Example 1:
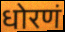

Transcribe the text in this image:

धोरणं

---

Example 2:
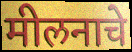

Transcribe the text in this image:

मीलनाचे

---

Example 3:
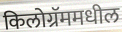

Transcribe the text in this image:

किलोग्रॅममधील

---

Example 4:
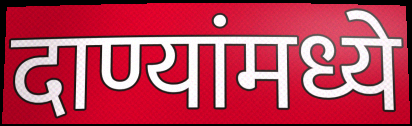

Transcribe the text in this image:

दाण्यांमध्ये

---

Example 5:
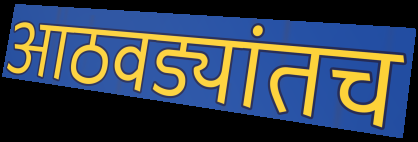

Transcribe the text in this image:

आठवड्यांतच